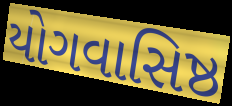
યોગવાસિષ્ઠ